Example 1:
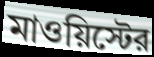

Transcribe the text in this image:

মাওয়িস্টের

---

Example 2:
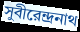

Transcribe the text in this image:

সুবীরেন্দ্রনাথ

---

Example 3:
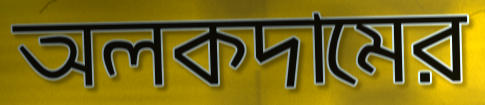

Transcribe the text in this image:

অলকদামের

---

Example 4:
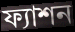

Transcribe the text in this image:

ফ্যাশন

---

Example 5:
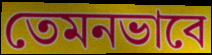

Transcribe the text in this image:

তেমনভাবে